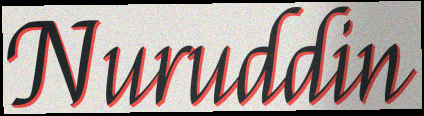
Nuruddin